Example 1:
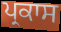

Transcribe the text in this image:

ਪ੍ਰਕਾਸ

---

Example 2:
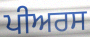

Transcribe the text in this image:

ਪੀਅਰਸ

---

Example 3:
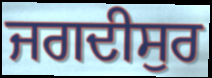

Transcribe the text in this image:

ਜਗਦੀਸੁਰ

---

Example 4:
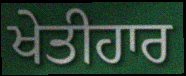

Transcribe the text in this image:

ਖੇਤੀਹਾਰ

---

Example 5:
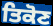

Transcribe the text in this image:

ਤਿਕੋਣ